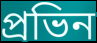
প্রভিন